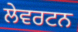
ਲੇਵਰਟਨ